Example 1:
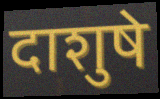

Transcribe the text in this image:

दाशुषे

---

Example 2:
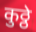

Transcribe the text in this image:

कुठ्ठे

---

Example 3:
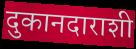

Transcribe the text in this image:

दुकानदाराशी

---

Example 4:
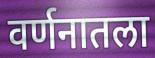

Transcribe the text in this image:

वर्णनातला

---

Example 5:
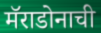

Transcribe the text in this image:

मॅराडोनाची